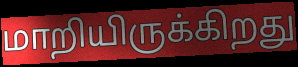
மாறியிருக்கிறது